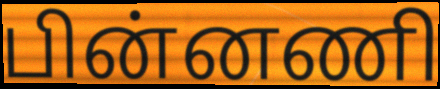
பின்னணி